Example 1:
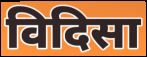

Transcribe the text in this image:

विदिसा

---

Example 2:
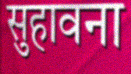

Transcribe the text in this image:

सुहावना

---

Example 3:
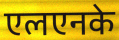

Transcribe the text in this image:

एलएनके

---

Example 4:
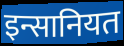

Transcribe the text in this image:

इन्सानियत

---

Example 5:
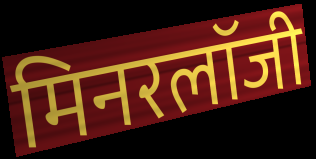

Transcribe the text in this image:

मिनरलॉजी